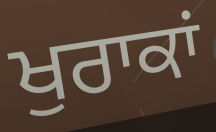
ਖੁਰਾਕਾਂ